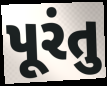
પૂરંતુ